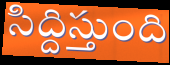
సిద్దిస్తుంది